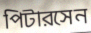
পিটারসেন